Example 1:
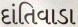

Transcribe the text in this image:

દાંતિવાડા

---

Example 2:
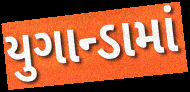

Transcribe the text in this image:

યુગાન્ડામાં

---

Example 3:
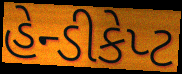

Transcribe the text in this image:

હેન્ડીકેપ્ટ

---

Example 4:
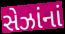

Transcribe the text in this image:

સેઝાંનાં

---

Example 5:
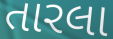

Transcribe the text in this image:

તારલા